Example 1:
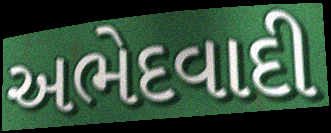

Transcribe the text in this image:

અભેદવાદી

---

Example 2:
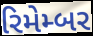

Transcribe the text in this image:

રિમેમ્બર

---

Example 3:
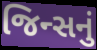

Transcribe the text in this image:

જિન્સનું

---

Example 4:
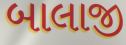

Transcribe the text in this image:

બાલાજી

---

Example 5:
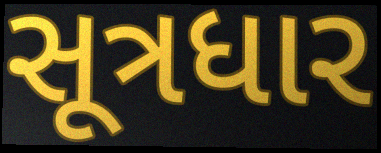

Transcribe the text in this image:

સૂત્રધાર